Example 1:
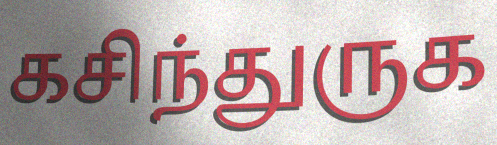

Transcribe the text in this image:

கசிந்துருக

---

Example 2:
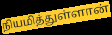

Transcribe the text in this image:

நியமித்துள்ளான்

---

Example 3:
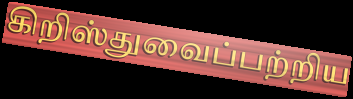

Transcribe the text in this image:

கிறிஸ்துவைப்பற்றிய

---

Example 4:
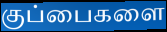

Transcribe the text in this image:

குப்பைகளை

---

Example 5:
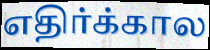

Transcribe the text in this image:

எதிர்க்கால